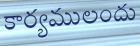
కార్యములందు